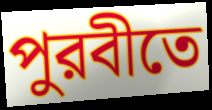
পুরবীতে